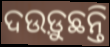
ଦଉଡ଼ୁଛନ୍ତି